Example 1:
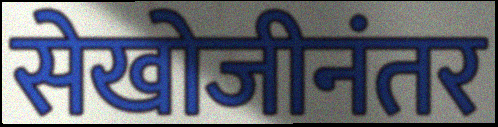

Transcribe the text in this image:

सेखोजीनंतर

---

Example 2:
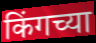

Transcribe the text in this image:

किंगच्या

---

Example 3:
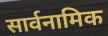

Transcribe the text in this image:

सार्वनामिक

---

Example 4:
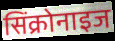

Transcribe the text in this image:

सिंक्रोनाइज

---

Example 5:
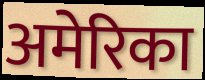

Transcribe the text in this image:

अमेरिका